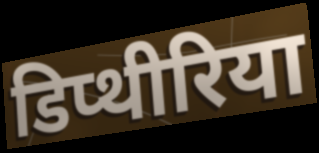
डिप्थीरिया